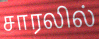
சாரலில்